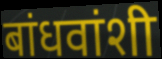
बांधवांशी